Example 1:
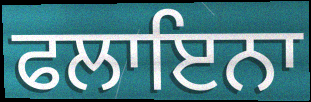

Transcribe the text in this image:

ਫਲਾਇਨਾ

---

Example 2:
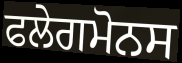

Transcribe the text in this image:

ਫਲੇਗਮੋਨਸ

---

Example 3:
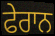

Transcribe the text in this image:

ਫੇਰਾਨ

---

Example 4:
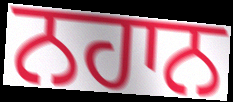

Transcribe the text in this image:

ਨਹਾਨ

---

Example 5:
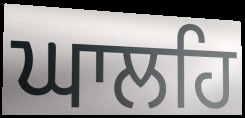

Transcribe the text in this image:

ਘਾਲਹਿ